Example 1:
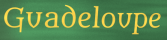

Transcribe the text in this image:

Guadeloupe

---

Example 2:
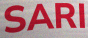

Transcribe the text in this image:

SARI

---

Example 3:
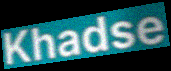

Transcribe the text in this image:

Khadse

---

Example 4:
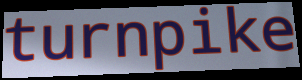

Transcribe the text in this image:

turnpike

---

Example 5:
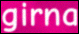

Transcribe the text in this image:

girna